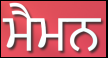
ਮੈਮਨ